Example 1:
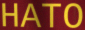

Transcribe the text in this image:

HATO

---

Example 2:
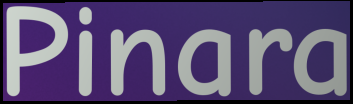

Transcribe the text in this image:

Pinara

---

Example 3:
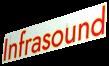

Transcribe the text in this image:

Infrasound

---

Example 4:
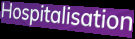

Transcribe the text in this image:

Hospitalisation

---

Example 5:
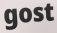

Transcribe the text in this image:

gost